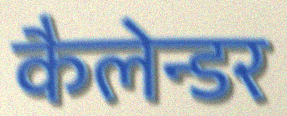
कैलेन्डर